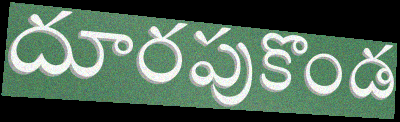
దూరపుకొండ